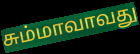
சும்மாவாவது